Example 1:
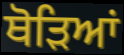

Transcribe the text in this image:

ਥੋੜਿਆਂ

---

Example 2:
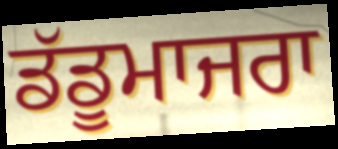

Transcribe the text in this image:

ਡੱਡੂਮਾਜਰਾ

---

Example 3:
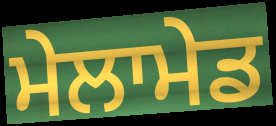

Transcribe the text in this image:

ਮੇਲਾਮੇਡ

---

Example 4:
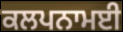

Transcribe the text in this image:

ਕਲਪਨਾਮਈ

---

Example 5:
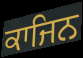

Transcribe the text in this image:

ਕਾਜਿਨ